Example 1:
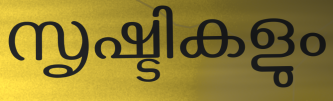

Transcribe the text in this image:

സൃഷ്ടികളും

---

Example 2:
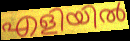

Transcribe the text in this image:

എളിയിൽ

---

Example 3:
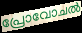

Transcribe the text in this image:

പ്രോവോചൽ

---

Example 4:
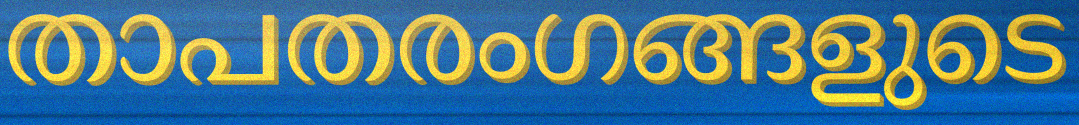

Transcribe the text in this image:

താപതരംഗങ്ങളുടെ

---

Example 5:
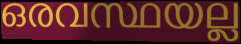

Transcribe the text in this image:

ഒരവസ്ഥയല്ല